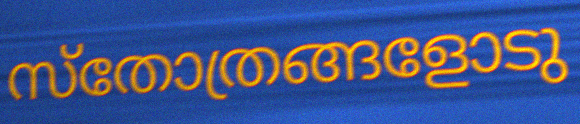
സ്തോത്രങ്ങളോടു